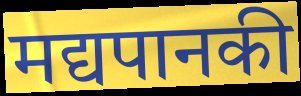
मद्यपानकी